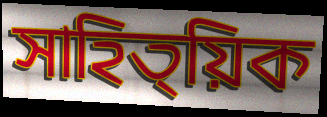
সাহিত্য়িক